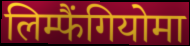
लिम्फैंगियोमा